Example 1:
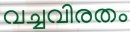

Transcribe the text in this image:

വച്ചവിരതം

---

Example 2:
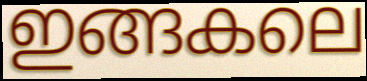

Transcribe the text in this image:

ഇങ്ങകലെ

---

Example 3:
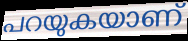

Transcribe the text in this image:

പറയുകയാണ്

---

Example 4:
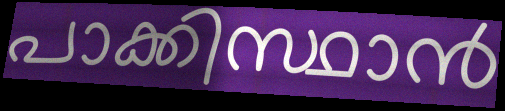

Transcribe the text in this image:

പാക്കിസ്ഥാൻ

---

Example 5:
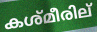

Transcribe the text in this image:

കശ്മീരില്